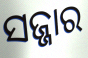
ସଜ୍ଜାର